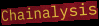
Chainalysis